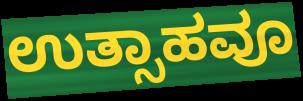
ಉತ್ಸಾಹವೂ